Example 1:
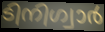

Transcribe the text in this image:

ടിനിഗ്വാർ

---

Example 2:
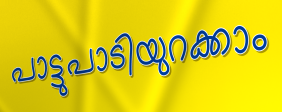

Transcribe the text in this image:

പാട്ടുപാടിയുറക്കാം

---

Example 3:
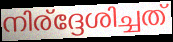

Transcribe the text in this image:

നിര്ദ്ദേശിച്ചത്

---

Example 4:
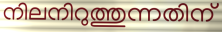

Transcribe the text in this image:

നിലനിറുത്തുന്നതിന്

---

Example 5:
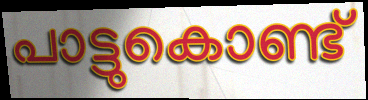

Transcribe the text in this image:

പാട്ടുകൊണ്ട്